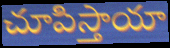
చూపిస్తాయా